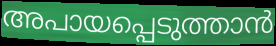
അപായപ്പെടുത്താൻ